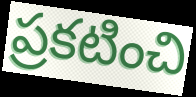
ప్రకటించి